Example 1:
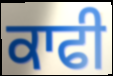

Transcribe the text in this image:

ਕਾਫੀ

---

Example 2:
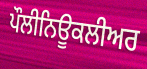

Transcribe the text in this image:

ਪੌਲੀਨਿਊਕਲੀਅਰ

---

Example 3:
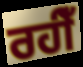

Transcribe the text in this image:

ਰਹੀਁ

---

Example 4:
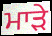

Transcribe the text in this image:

ਮਾੜੇ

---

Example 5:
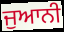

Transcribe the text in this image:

ਜੁਆਨੀ